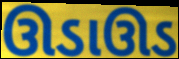
ઊડાઊડ